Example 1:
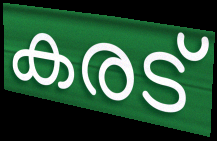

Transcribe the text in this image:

കരട്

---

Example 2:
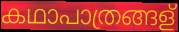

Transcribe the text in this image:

കഥാപാത്രങ്ങള്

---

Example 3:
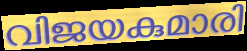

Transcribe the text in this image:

വിജയകുമാരി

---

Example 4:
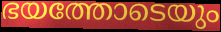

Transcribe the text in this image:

ഭയത്തോടെയും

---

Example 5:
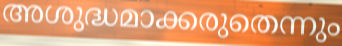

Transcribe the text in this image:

അശുദ്ധമാക്കരുതെന്നും